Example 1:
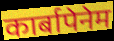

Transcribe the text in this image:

कार्बापेनेम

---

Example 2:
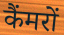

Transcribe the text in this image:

कैंमरों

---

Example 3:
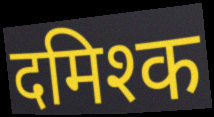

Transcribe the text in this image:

दमिश्क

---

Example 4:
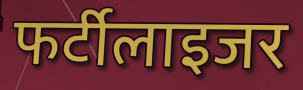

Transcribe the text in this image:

फर्टीलाइजर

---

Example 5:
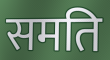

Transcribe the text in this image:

समति